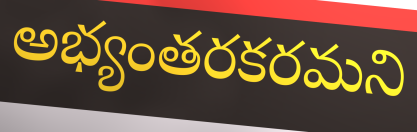
అభ్యంతరకరమని